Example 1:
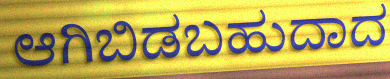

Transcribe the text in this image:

ಆಗಿಬಿಡಬಹುದಾದ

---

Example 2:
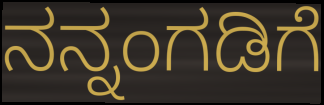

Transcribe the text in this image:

ನನ್ನಂಗಡಿಗೆ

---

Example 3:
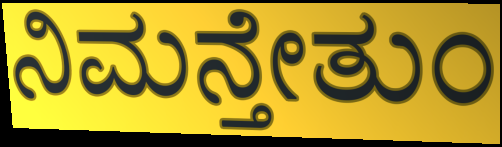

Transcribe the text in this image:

ನಿಮನ್ತೇತುಂ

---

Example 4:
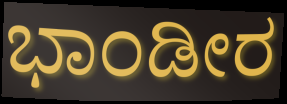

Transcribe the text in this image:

ಭಾಂಡೀರ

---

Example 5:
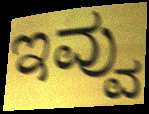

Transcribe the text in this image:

ಇವ್ವು